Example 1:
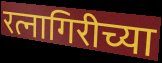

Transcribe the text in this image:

रत्नागिरीच्या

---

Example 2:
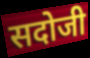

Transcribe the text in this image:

सदोजी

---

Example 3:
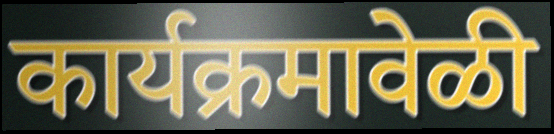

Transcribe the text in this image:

कार्यक्रमावेळी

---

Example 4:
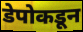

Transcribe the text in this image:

डेपोकडून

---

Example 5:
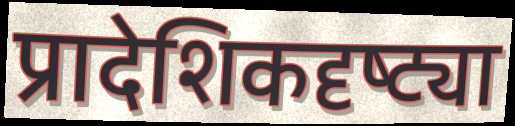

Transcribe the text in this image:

प्रादेशिकदृष्ट्या